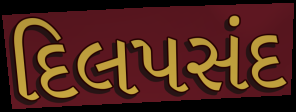
દિલપસંદ